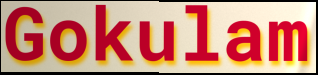
Gokulam